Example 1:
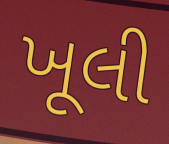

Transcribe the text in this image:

ખૂલી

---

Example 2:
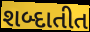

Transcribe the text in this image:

શબ્દાતીત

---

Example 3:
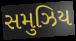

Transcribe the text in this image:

સમુઝિય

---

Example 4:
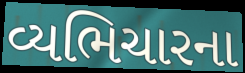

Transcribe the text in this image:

વ્યભિચારના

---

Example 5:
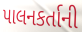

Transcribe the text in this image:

પાલનકર્તાની